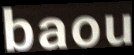
baou